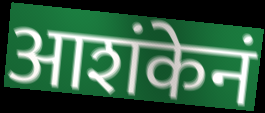
आशंकेनं